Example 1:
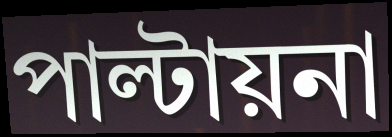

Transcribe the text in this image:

পাল্টায়না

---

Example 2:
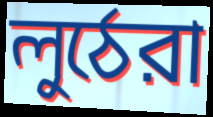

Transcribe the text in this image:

লুঠেরা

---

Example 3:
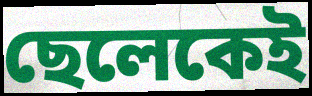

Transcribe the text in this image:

ছেলেকেই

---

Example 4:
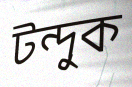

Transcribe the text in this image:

টন্দুক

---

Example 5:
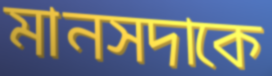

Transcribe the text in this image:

মানসদাকে